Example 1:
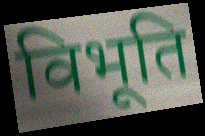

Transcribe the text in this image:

विभूति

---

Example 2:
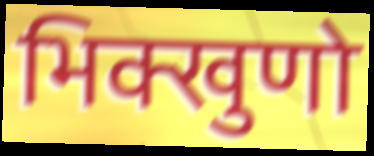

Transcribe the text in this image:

भिक्खुणो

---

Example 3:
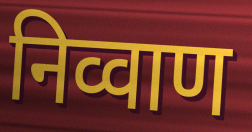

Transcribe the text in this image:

निव्वाण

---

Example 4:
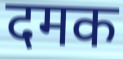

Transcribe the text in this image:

दमक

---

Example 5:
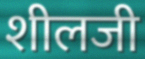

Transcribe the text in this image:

शीलजी